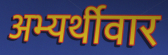
अभ्यर्थीवार